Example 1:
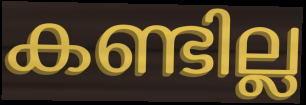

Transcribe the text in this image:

കണ്ടില്ല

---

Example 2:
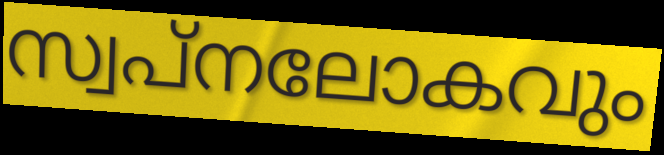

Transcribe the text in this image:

സ്വപ്നലോകവും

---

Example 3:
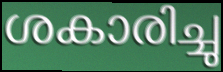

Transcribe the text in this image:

ശകാരിച്ചു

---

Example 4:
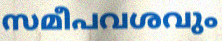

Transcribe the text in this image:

സമീപവശവും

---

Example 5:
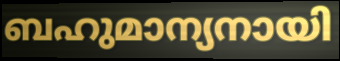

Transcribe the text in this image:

ബഹുമാന്യനായി